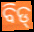
ବିଡ୍